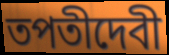
তপতীদেবী